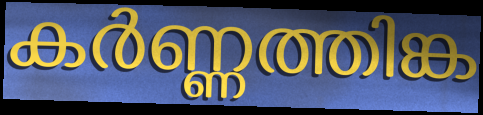
കർണ്ണത്തിങ്ക